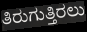
ತಿರುಗುತ್ತಿರಲು